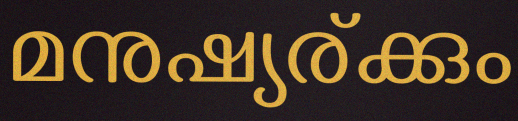
മനുഷ്യര്ക്കും